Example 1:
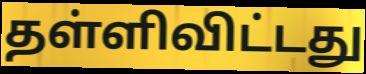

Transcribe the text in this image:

தள்ளிவிட்டது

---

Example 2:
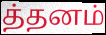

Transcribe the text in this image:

த்தனம்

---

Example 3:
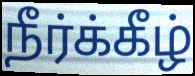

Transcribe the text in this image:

நீர்க்கீழ்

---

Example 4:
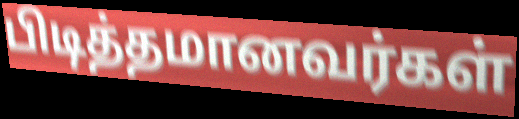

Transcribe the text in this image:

பிடித்தமானவர்கள்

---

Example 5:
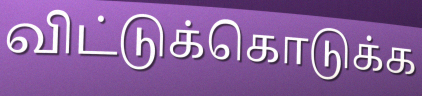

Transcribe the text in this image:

விட்டுக்கொடுக்க